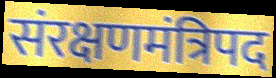
संरक्षणमंत्रिपद